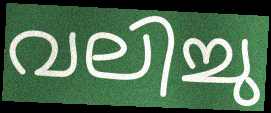
വലിച്ചു